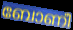
ബോണീ